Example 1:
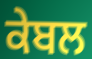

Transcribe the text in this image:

ਕੇਬਲ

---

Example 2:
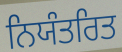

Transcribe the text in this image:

ਨਿਯੰਤਰਿਤ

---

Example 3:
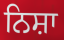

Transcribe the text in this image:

ਨਿਸ਼ਾ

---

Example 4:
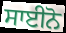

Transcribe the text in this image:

ਸਾਈਨੋ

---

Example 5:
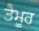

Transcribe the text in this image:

ਤੈਮੂਰ